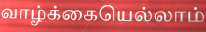
வாழ்க்கையெல்லாம்